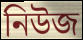
নিউজ